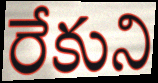
రేకుని